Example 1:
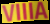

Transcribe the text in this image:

VIIIA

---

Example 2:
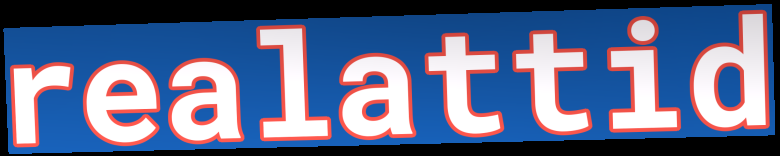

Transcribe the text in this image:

realattid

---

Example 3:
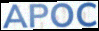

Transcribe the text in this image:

APOC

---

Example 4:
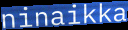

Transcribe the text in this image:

ninaikka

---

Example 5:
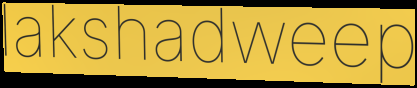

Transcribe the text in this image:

lakshadweep